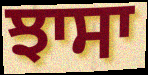
ਝਾਸਾ